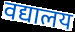
वद्यालय